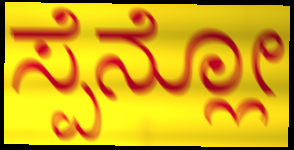
ಸ್ಪೆನ್ಲೋ